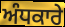
ਅੰਧਕਾਰੇ